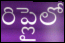
రిప్లైలో